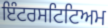
ਇੰਟਰਸਟਿਟਿਅਮ